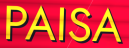
PAISA